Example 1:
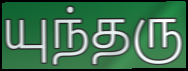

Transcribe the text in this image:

யுந்தரு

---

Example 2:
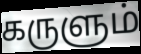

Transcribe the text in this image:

கருளும்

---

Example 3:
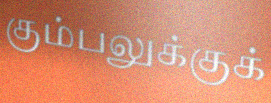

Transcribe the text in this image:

கும்பலுக்குக்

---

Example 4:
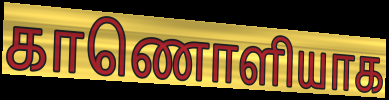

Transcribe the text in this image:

காணொளியாக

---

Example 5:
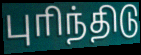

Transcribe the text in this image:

புரிந்திடு